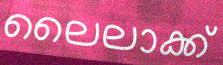
ലൈലാക്ക്